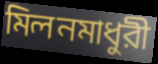
মিলনমাধুরী